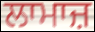
ਲਾਮਾਜ਼